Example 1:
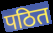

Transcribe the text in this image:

पठित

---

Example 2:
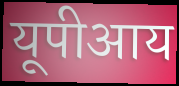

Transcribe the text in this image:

यूपीआय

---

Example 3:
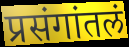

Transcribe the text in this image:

प्रसंगांतलं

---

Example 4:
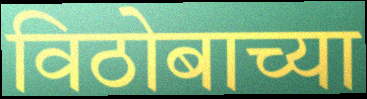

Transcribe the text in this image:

विठोबाच्या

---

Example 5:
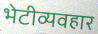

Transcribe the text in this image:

भेटीव्यवहार